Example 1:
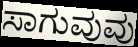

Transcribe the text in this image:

ಸಾಗುವುವು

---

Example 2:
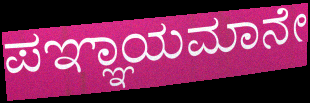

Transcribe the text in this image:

ಪಞ್ಞಾಯಮಾನೇ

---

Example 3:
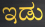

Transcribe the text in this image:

ಇಡು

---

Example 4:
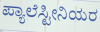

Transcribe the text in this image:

ಪ್ಯಾಲೆಸ್ಟೀನಿಯರ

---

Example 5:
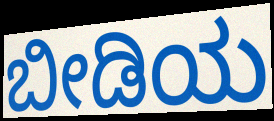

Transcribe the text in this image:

ಬೀಡಿಯ